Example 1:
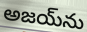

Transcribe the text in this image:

అజయ్‌ను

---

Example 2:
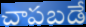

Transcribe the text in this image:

చాపబడే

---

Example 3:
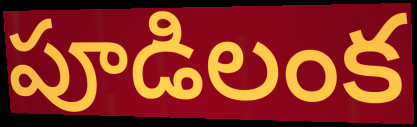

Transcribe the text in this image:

పూడిలంక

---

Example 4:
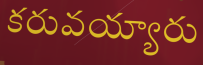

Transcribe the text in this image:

కరువయ్యారు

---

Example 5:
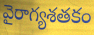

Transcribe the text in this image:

వైరాగ్యశతకం